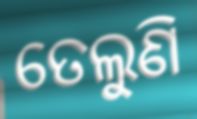
ତେଲୁଣି